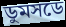
ডুমসডে